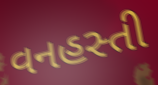
વનહસ્તી